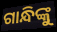
ଗାନ୍ଧିଙ୍କୁ